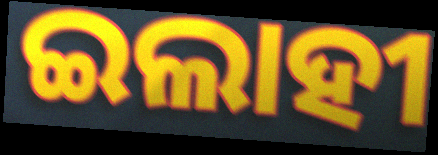
ଇଲାହୀ